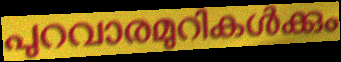
പുറവാരമുറികൾക്കും